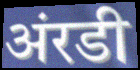
अंरडी